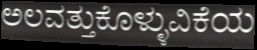
ಅಲವತ್ತುಕೊಳ್ಳುವಿಕೆಯ